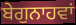
ਬੇਗੁਨਾਹਵਾਂ